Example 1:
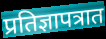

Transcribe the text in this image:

प्रतिज्ञापत्रात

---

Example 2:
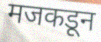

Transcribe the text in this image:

मजकडून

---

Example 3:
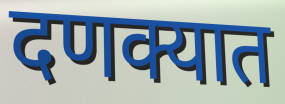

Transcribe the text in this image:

दणक्यात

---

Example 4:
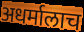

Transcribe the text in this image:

अधर्मालाच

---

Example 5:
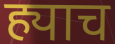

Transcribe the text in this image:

ह्याच